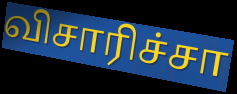
விசாரிச்சா